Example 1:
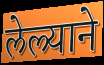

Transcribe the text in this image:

लेल्याने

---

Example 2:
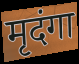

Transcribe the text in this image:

मृदंगा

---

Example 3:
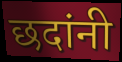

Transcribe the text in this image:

छदांनी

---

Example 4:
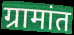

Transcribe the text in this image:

ग्रामांत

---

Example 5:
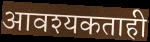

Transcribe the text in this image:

आवश्यकताही